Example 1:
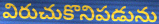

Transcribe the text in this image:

విరుచుకొనిపడును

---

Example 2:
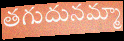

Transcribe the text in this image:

తగుదునమ్మా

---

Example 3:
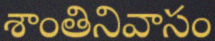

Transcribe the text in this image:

శాంతినివాసం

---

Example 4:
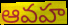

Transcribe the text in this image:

ఆవహ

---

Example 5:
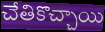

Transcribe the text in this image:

చేతికొచ్చాయి